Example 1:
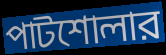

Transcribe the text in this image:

পাটশোলার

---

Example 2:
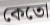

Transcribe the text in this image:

কেতো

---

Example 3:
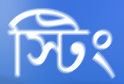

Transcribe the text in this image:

স্টিং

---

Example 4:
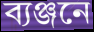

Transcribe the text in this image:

ব্যঞ্জনে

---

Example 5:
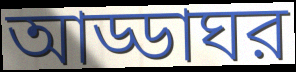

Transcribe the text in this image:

আড্ডাঘর